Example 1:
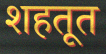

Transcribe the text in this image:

शहतूत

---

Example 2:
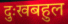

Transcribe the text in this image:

दुःखबहुल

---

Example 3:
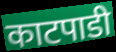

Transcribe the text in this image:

काटपाडी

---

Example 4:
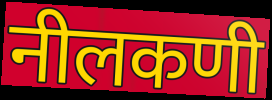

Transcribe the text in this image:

नीलकणी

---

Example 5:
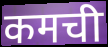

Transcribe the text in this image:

कमची